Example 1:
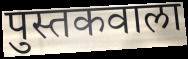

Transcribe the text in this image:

पुस्तकवाला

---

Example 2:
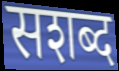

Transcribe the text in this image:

सशब्द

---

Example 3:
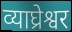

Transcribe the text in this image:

व्याघ्रेश्वर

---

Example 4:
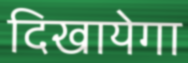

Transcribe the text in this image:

दिखायेगा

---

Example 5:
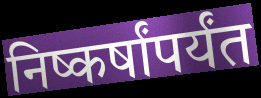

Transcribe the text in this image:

निष्कर्षांपर्यंत